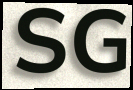
SG